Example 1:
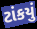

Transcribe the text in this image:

ટાંકયું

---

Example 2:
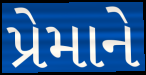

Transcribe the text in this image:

પ્રેમાને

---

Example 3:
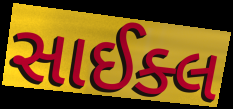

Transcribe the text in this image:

સાઈક્લ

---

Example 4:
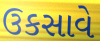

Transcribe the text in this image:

ઉકસાવે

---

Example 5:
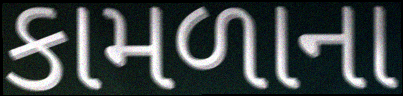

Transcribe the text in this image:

કામળાના